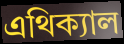
এথিক্যাল